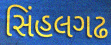
સિંહલગઢ